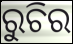
ରୁଚିର